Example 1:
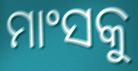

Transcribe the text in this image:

ମାଂସକୁ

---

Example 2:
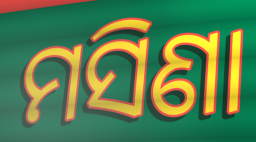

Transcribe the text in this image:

ମସିଣା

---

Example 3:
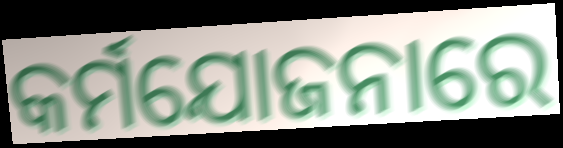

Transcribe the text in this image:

କର୍ମଯୋଜନାରେ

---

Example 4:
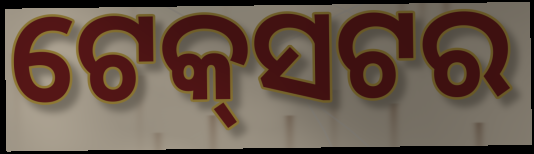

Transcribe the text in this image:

ଟେକ୍‌ସଟର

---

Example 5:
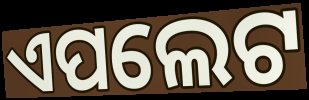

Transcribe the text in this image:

ଏପଲେଟ